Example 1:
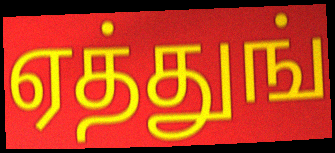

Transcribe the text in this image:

ஏத்துங்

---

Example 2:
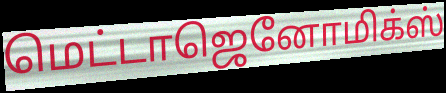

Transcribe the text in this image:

மெட்டாஜெனோமிக்ஸ்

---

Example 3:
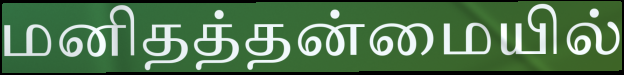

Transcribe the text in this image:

மனிதத்தன்மையில்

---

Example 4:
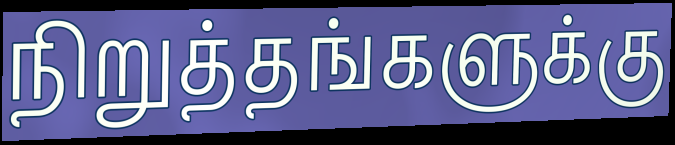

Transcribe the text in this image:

நிறுத்தங்களுக்கு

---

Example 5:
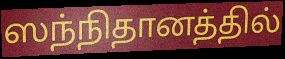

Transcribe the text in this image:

ஸந்நிதானத்தில்